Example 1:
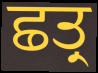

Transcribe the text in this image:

ਛਤ੍ਰ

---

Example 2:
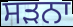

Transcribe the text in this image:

ਸੜਨਾ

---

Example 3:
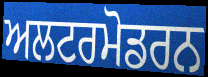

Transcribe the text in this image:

ਅਲਟਰਮੋਡਰਨ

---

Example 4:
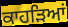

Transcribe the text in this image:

ਕਾਹੜਿਆਂ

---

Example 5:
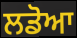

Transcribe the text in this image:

ਲਡੋਆ